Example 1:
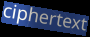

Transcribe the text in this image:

ciphertext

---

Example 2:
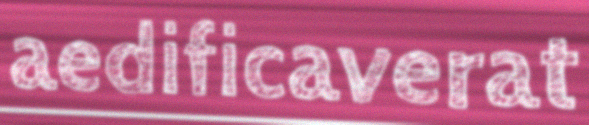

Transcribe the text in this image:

aedificaverat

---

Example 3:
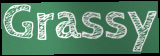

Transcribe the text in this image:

Grassy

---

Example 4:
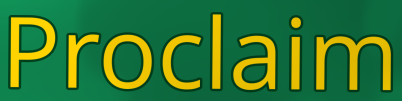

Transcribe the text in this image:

Proclaim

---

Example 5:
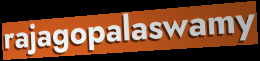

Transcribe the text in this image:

rajagopalaswamy